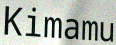
Kimamu